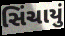
સિંચાયું